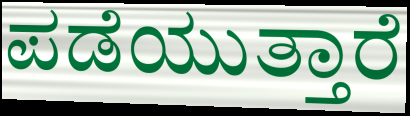
ಪಡೆಯುತ್ತಾರೆ